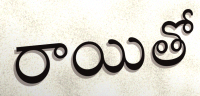
రాయితో